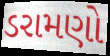
ડરામણો